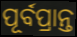
ପୂର୍ବପ୍ରାନ୍ତ